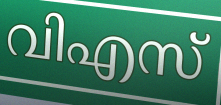
വിഎസ്